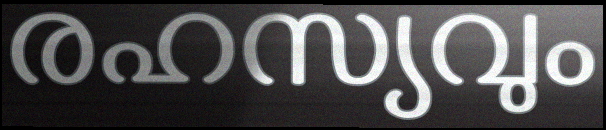
രഹസ്യവും